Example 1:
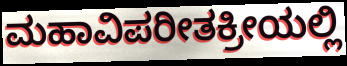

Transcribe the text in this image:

ಮಹಾವಿಪರೀತಕ್ರೀಯಲ್ಲಿ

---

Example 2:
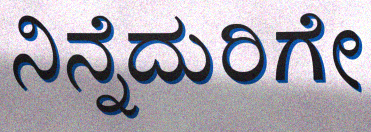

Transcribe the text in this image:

ನಿನ್ನೆದುರಿಗೇ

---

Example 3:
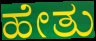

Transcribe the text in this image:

ಹೇತು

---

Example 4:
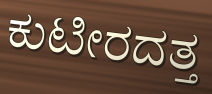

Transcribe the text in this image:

ಕುಟೀರದತ್ತ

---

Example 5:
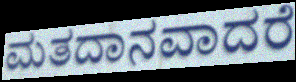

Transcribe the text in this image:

ಮತದಾನವಾದರೆ